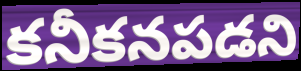
కనీకనపడని